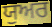
ਯੁਅਰ